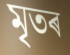
মৃতৰ